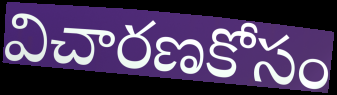
విచారణకోసం